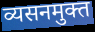
व्यसनमुक्त